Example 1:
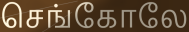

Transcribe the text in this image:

செங்கோலே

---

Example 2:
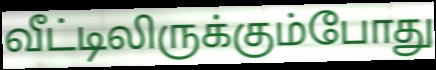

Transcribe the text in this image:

வீட்டிலிருக்கும்போது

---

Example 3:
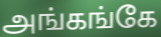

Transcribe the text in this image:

அங்கங்கே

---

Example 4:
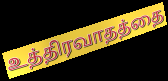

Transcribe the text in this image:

உத்திரவாதத்தை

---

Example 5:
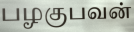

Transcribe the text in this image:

பழகுபவன்